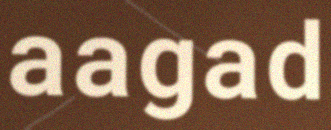
aagad